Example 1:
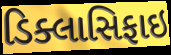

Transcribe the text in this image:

ડિક્લાસિફાઇ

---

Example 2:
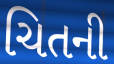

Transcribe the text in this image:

ચિતની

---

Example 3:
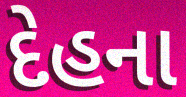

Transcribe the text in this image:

દેહના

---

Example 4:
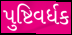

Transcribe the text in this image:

પુષ્ટિવર્ધક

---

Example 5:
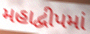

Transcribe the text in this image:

મહાદ્વીપમાં